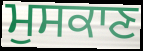
ਮੁਸਕਾਣ